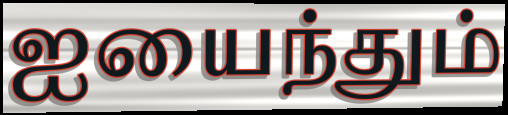
ஐயைந்தும்